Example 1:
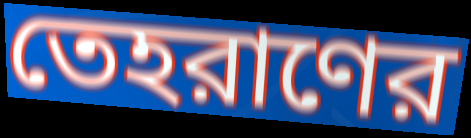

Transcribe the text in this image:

তেহরাণের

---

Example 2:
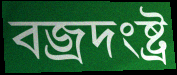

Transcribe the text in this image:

বজ্রদংষ্ট্র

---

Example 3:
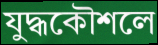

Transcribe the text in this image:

যুদ্ধকৌশলে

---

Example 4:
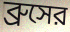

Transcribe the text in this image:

ব্রুসের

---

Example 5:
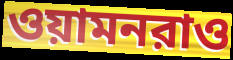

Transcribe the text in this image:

ওয়ামনরাও